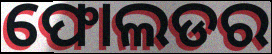
ଫୋଲଡର